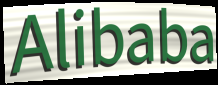
Alibaba